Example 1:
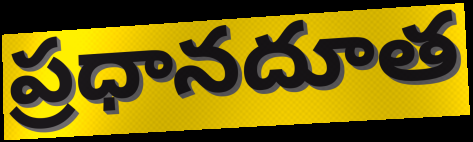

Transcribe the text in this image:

ప్రధానదూత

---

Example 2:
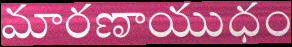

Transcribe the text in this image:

మారణాయుధం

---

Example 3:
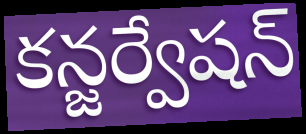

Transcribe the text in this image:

కన్జర్వేషన్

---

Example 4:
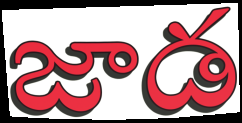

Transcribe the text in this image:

జాడ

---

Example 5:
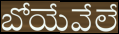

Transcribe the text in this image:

బోయేవేలే